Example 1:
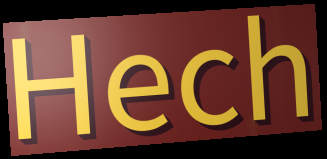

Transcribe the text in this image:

Hech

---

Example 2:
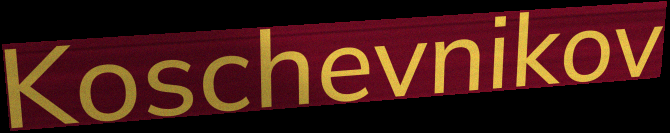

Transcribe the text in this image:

Koschevnikov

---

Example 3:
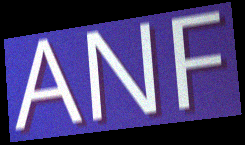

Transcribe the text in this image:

ANF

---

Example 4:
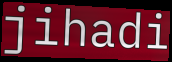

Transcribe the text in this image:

jihadi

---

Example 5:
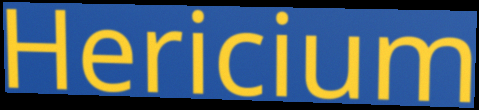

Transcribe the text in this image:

Hericium